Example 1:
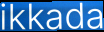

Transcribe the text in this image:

ikkada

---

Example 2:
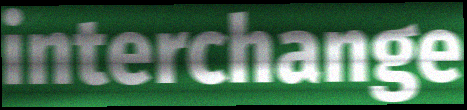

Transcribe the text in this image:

interchange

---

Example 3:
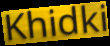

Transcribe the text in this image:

Khidki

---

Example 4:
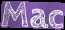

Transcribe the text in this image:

Mac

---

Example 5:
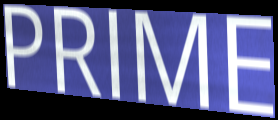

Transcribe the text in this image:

PRIME